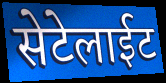
सेटेलाईट